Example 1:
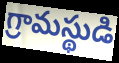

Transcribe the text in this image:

గ్రామస్థుడి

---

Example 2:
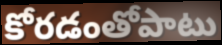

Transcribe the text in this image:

కోరడంతోపాటు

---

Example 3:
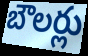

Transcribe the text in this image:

బౌలర్లు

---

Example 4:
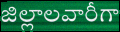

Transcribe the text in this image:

జిల్లాలవారీగా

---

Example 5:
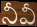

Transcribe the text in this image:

నీవీ